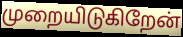
முறையிடுகிறேன்